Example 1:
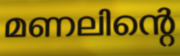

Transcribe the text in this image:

മണലിന്റെ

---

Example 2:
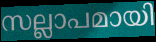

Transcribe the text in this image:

സല്ലാപമായി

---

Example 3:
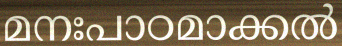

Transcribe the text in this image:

മനഃപാഠമാക്കൽ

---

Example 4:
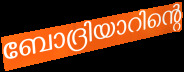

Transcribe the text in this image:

ബോദ്രിയാറിന്റെ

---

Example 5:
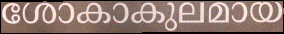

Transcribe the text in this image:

ശോകാകുലമായ